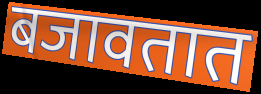
बजावतात